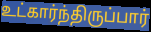
உட்கார்ந்திருப்பார்